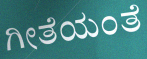
ಗೀತೆಯಂತೆ